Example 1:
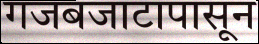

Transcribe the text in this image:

गजबजाटापासून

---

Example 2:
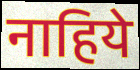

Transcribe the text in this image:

नाहिये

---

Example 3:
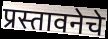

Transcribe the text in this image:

प्रस्तावनेचे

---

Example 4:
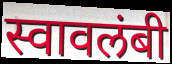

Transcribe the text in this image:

स्वावलंबी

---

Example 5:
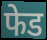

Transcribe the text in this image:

फेड